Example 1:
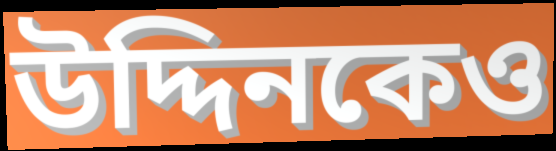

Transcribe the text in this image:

উদ্দিনকেও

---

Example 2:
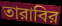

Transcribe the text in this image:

তারাবির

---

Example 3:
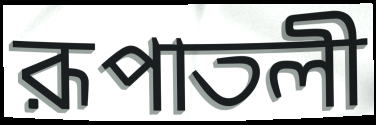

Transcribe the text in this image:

রূপাতলী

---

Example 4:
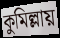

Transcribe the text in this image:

কুমিল্লায়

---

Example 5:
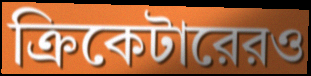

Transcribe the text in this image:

ক্রিকেটারেরও